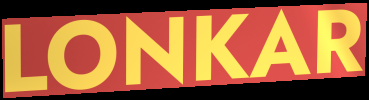
LONKAR